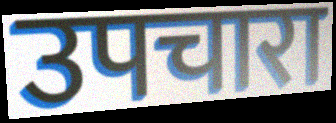
उपचारा